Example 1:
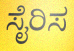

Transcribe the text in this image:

ಸೈರಿಸ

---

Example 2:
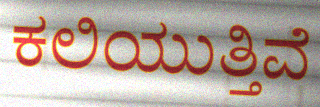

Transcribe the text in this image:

ಕಲಿಯುತ್ತಿವೆ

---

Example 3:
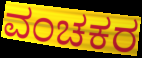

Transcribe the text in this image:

ವಂಚಕರ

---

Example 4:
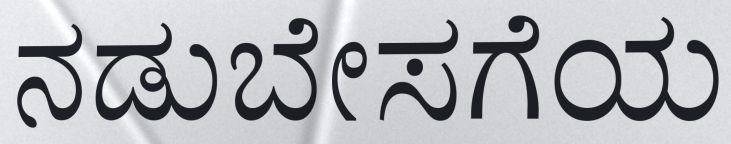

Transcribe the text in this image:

ನಡುಬೇಸಗೆಯ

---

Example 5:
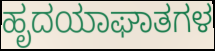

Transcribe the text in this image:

ಹೃದಯಾಘಾತಗಳ